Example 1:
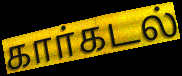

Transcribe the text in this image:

கார்கடல்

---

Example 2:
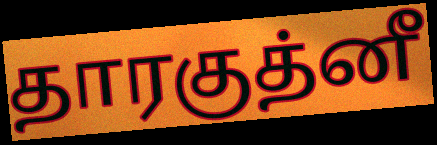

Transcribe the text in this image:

தாரகுத்னீ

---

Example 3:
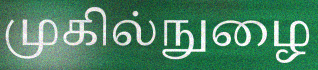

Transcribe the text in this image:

முகில்நுழை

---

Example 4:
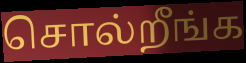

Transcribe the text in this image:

சொல்றீங்க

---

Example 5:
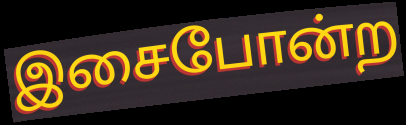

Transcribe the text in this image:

இசைபோன்ற